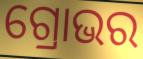
ଗ୍ରୋଭର